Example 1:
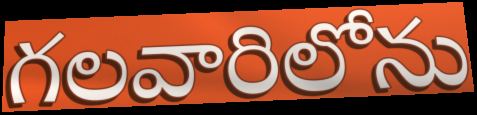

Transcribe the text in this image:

గలవారిలోను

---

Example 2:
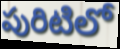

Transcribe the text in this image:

పురిటిలో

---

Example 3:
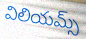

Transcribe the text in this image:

విలియమ్స్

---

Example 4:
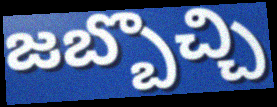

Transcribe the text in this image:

జబ్బొచ్చి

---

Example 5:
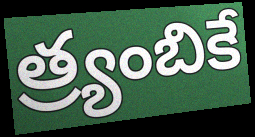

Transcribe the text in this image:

త్ర్యంబికే